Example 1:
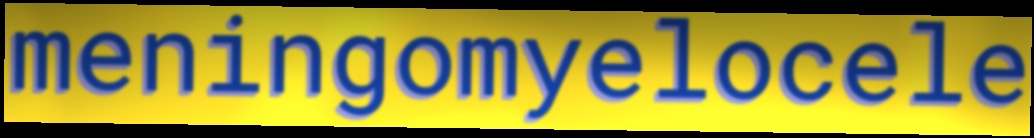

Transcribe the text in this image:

meningomyelocele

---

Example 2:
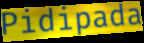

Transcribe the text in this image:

Pidipada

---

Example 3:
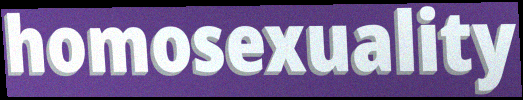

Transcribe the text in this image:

homosexuality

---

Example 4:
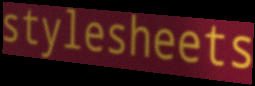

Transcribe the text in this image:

stylesheets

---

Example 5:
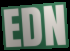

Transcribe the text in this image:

EDN